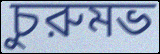
চুরুমভ